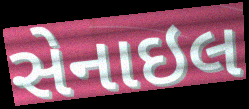
સેનાઇલ